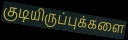
குடியிருப்புக்களை